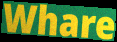
Whare